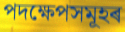
পদক্ষেপসমূহৰ